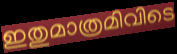
ഇതുമാത്രമിവിടെ